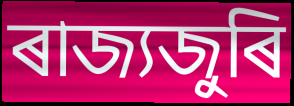
ৰাজ্যজুৰি